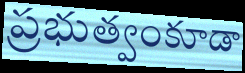
ప్రభుత్వంకూడా